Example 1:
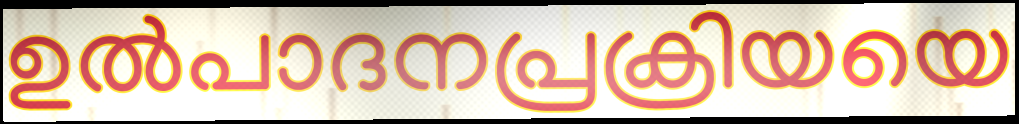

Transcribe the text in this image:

ഉൽപാദനപ്രക്രിയയെ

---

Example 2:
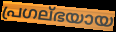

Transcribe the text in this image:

പ്രഗല്ഭയായ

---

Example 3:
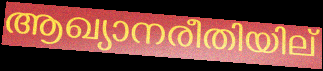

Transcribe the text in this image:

ആഖ്യാനരീതിയില്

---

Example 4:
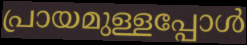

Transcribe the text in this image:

പ്രായമുള്ളപ്പോൾ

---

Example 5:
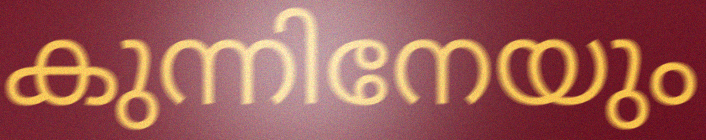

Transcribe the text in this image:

കുന്നിനേയും